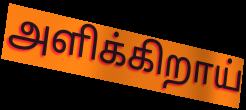
அளிக்கிறாய்